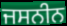
ਜਸਨੀਨ